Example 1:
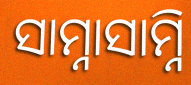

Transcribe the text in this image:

ସାମ୍ନାସାମ୍ନି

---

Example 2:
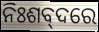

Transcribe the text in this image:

ନିଃଶବ୍‌ଦରେ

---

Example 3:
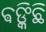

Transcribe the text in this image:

ଵଙ୍କିଛି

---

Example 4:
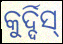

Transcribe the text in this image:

କୁର୍ଦ୍ଦିସ୍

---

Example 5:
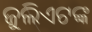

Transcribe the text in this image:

ଜୁଲିଏଟଙ୍କ